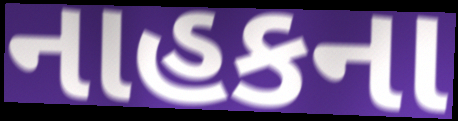
નાહકના